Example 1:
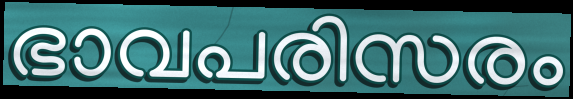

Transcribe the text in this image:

ഭാവപരിസരം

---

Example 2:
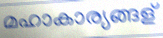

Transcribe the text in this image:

മഹാകാര്യങ്ങള്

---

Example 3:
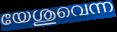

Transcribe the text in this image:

യേശുവെന്ന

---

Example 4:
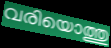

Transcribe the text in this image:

വരിയൊത്തു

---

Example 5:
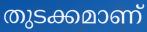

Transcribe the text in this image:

തുടക്കമാണ്